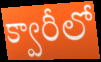
క్వారీలో